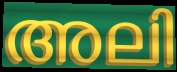
അലി